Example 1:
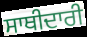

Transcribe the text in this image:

ਸਾਥੀਦਾਰੀ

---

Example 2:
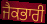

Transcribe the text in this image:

ਜੈਕਭਾਰੀ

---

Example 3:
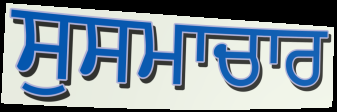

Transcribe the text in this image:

ਸੁਸਮਾਚਾਰ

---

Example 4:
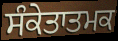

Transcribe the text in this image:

ਸੰਕੇਤਾਤਮਕ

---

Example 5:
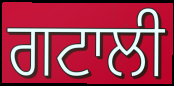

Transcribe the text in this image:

ਗਟਾਲੀ